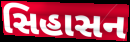
સિહાસન